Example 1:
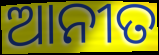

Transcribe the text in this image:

ଆନୀତ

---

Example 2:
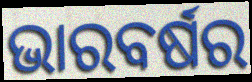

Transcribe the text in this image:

ଭାରବର୍ଷର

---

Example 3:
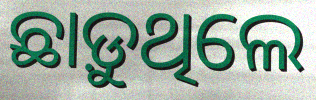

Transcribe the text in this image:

ଛାଡ଼ୁଥିଲେ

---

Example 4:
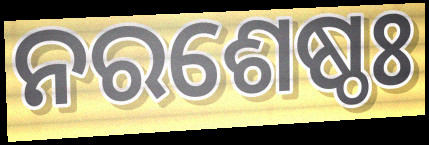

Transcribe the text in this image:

ନରଶେଷ୍ଠଃ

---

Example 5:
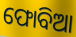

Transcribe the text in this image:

ଫୋବିଆ